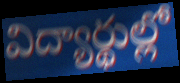
విద్యార్థుల్లో